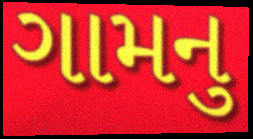
ગામનુ